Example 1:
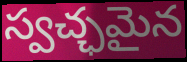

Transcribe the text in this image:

స్వచ్ఛమైన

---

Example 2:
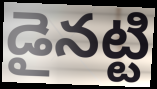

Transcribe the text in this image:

డైనట్టి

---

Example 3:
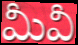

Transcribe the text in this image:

మీవీ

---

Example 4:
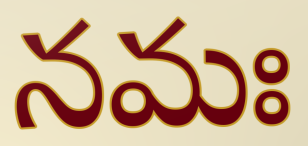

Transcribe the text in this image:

నమః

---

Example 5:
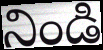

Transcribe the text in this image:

నిండి